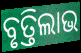
ବୃତ୍ତିଲାଭ